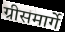
ग्रीसमार्गे